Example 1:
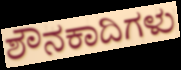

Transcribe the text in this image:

ಶೌನಕಾದಿಗಳು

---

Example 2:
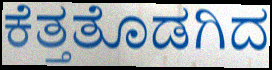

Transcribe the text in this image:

ಕೆತ್ತತೊಡಗಿದ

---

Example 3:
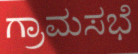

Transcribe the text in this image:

ಗ್ರಾಮಸಭೆ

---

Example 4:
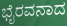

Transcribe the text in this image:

ಭೈರವನಾದ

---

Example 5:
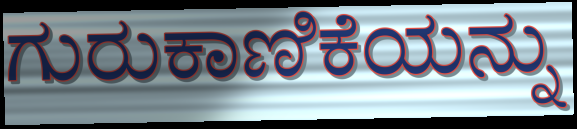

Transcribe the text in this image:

ಗುರುಕಾಣಿಕೆಯನ್ನು